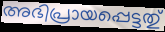
അഭിപ്രായപ്പെട്ടതു്